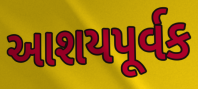
આશયપૂર્વક